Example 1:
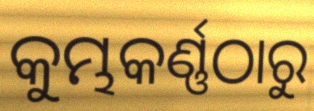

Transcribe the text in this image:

କୁମ୍ଭକର୍ଣ୍ଣଠାରୁ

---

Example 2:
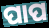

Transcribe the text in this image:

ପାପ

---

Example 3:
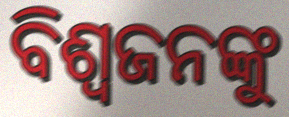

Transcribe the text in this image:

ବିଶ୍ୱଜନଙ୍କୁ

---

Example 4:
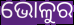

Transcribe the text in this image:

ଭୋଳୁର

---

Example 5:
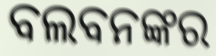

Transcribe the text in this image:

ବଲବନଙ୍କର